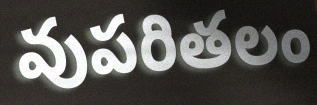
వుపరితలం